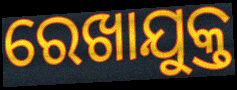
ରେଖାଯୁକ୍ତ